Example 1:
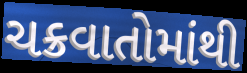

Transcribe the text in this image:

ચક્રવાતોમાંથી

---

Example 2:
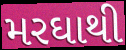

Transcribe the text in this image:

મરઘાથી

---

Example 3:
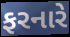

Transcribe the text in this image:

ફરનારે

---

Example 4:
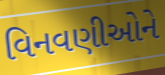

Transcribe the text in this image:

વિનવણીઓને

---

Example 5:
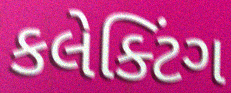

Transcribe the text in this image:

કલેક્ટિંગ